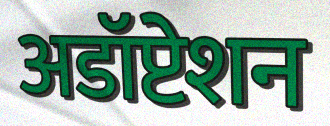
अडॉप्टेशन